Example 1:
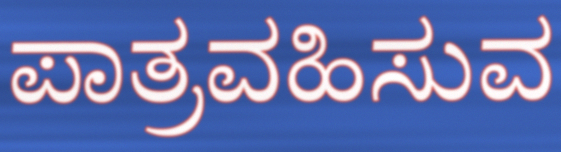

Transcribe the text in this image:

ಪಾತ್ರವಹಿಸುವ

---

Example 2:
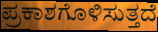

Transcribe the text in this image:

ಪ್ರಕಾಶಗೊಳಿಸುತ್ತದೆ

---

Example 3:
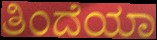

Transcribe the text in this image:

ತಿಂದೆಯಾ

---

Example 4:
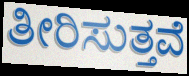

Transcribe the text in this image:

ತೀರಿಸುತ್ತವೆ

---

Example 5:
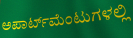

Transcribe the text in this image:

ಅಪಾರ್ಟ್‌ಮೆಂಟುಗಳಲ್ಲಿ